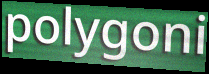
polygoni